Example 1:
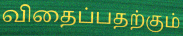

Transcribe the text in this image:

விதைப்பதற்கும்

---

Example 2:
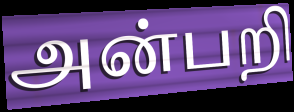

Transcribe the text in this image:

அன்பறி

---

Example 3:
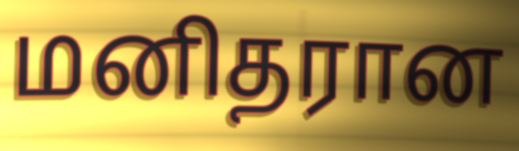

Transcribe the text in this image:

மனிதரான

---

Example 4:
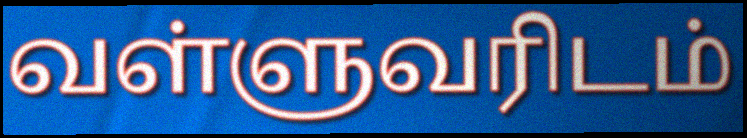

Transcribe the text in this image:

வள்ளுவரிடம்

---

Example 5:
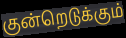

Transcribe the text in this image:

குன்றெடுக்கும்